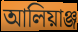
আলিয়াঞ্জ